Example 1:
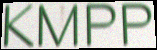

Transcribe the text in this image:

KMPP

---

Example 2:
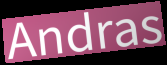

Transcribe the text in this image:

Andras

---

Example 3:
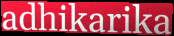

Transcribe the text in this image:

adhikarika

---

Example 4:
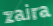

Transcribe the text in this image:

zaira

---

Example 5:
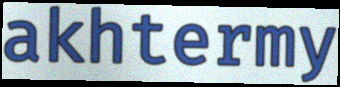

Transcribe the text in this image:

akhtermy